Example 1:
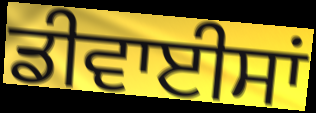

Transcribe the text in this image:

ਡੀਵਾਈਸਾਂ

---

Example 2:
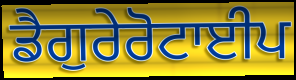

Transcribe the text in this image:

ਡੈਗੁਰੇਰੋਟਾਈਪ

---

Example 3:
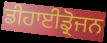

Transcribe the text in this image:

ਡੀਹਾਈਡ੍ਰੋਜਨ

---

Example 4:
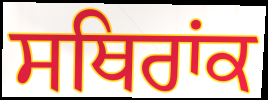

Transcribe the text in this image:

ਸਥਿਰਾਂਕ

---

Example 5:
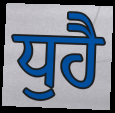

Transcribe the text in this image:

ਧੁਹੈ